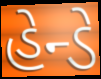
હેન્ડે